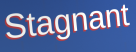
Stagnant